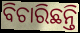
ବିଚାରିଛନ୍ତି